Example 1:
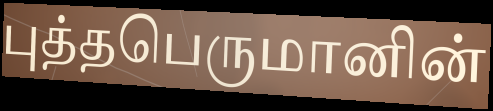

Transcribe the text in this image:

புத்தபெருமானின்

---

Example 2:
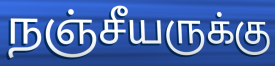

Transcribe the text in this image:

நஞ்சீயருக்கு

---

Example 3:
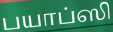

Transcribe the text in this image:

பயாப்ஸி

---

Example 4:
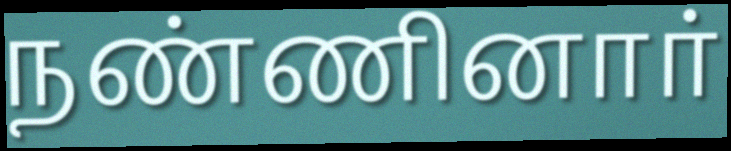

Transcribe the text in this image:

நண்ணினார்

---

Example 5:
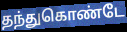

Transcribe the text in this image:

தந்துகொண்டே